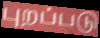
புறப்படு